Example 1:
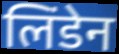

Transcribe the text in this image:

लिंडेन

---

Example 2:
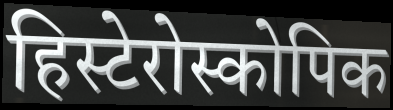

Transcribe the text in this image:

हिस्टेरोस्कोपिक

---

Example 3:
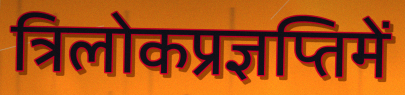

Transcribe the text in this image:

त्रिलोकप्रज्ञप्तिमें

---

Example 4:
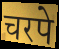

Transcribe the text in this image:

चरपे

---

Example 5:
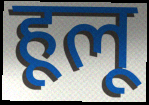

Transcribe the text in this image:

हूलू